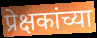
प्रेक्षकांच्या